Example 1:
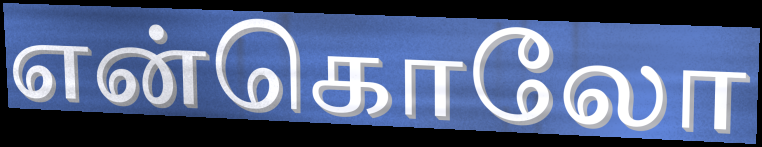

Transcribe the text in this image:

என்கொலோ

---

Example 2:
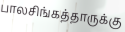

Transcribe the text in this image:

பாலசிங்கத்தாருக்கு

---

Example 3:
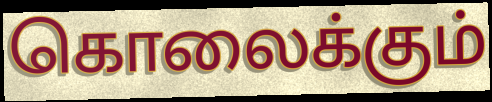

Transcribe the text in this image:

கொலைக்கும்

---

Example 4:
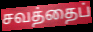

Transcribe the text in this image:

சவத்தைப்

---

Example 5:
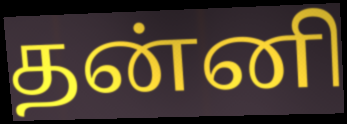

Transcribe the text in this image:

தன்னி